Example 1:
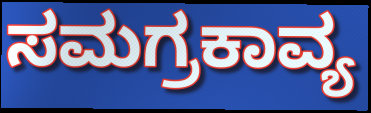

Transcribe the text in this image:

ಸಮಗ್ರಕಾವ್ಯ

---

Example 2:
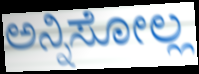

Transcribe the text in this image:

ಅನ್ನಿಸೋಲ್ಲ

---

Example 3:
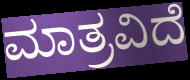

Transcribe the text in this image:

ಮಾತ್ರವಿದೆ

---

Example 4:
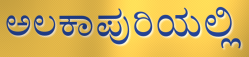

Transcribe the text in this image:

ಅಲಕಾಪುರಿಯಲ್ಲಿ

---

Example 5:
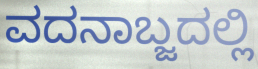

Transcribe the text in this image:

ವದನಾಬ್ಜದಲ್ಲಿ